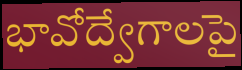
భావోద్వేగాలపై